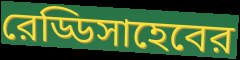
রেড্ডিসাহেবের